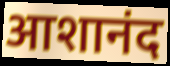
आशानंद